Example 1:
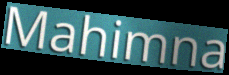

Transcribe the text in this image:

Mahimna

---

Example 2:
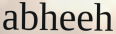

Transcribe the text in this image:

abheeh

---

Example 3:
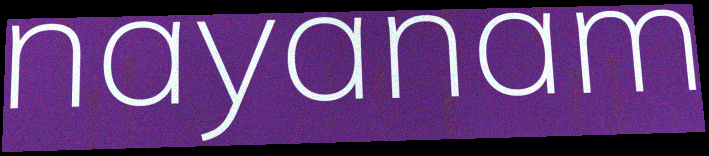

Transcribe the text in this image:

nayanam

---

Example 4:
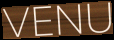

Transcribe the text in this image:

VENU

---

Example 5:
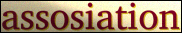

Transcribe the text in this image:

assosiation